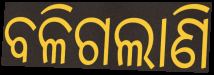
ବଳିଗଲାଣି